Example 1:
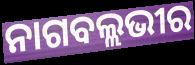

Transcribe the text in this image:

ନାଗବଲ୍ଲଭୀର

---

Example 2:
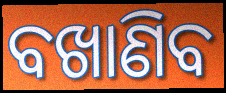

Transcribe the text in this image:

ବଖାଣିବ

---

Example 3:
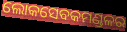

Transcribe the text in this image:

ଲୋକସେବକମଣ୍ଡଳର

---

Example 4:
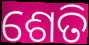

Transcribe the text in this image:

ଶେତି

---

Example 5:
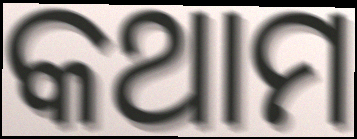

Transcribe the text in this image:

କଥାମ